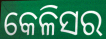
କେଳିସର